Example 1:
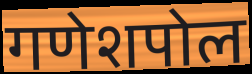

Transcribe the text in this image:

गणेशपोल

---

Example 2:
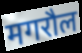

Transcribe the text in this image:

मगरौल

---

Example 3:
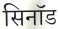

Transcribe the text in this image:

सिनॉड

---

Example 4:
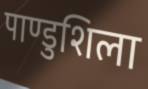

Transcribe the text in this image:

पाण्डुशिला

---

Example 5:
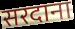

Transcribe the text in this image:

सरदाना